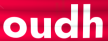
oudh